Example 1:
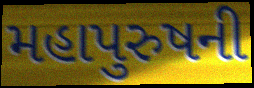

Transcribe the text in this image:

મહાપુરુષની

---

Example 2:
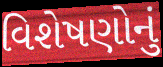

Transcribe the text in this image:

વિશેષણોનું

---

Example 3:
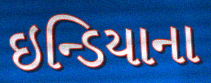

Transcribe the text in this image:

ઇન્ડિયાના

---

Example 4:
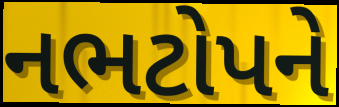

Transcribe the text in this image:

નભટોપને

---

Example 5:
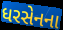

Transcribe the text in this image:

ધરસેનના